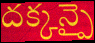
దక్కన్పై